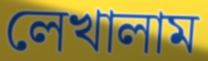
লেখালাম